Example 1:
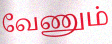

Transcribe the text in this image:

வேணும்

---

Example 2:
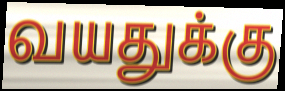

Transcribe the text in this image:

வயதுக்கு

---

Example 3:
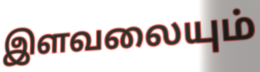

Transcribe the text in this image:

இளவலையும்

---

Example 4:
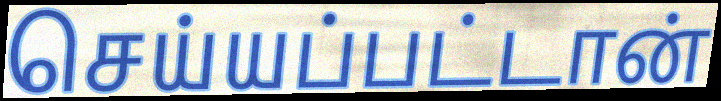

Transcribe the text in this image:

செய்யப்பட்டான்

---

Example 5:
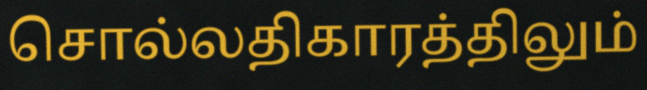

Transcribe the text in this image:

சொல்லதிகாரத்திலும்